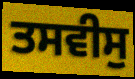
ਤਸਵੀਸੁ